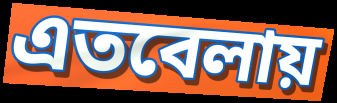
এতবেলায়